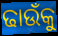
ଢାଉଁକୁ